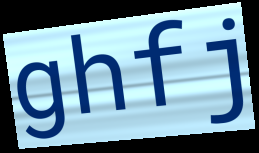
ghfj